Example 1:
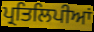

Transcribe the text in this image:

ਪ੍ਰਤਿਲਿਪੀਆਂ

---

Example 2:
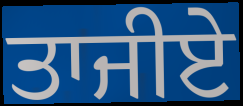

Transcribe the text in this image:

ਤਾਜੀਏ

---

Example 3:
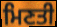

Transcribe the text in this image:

ਮਿਣਤੀ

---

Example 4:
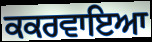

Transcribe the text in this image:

ਕਕਰਵਾਇਆ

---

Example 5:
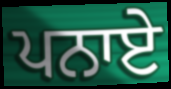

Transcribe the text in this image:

ਪਨਾਏ